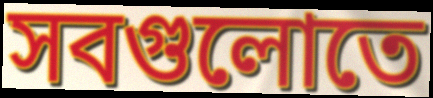
সবগুলোতে